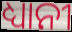
ଧ୍ୟାନୀ